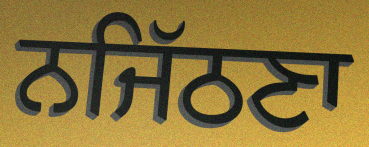
ਨਜਿੱਠਣਾ